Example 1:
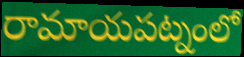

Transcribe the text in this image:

రామాయపట్నంలో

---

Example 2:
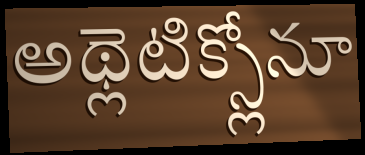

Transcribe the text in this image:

అథ్లెటిక్స్లోనూ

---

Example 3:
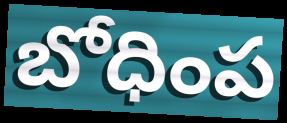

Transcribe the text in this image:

బోధింప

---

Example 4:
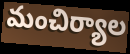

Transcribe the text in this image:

మంచిర్యాల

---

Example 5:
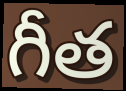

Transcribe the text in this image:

గీత